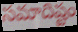
సమాదిష్టం